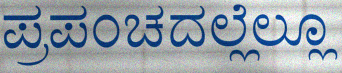
ಪ್ರಪಂಚದಲ್ಲೆಲ್ಲೂ